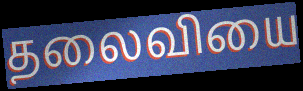
தலைவியை